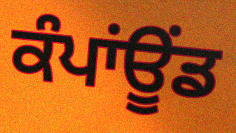
ਕੰਪਾਂਊਂਡ